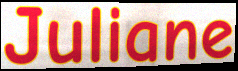
Juliane